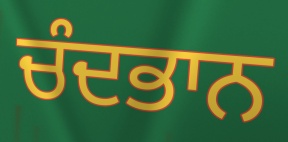
ਚੰਦਭਾਨ